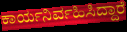
ಕಾರ್ಯನಿರ್ವಹಿಸಿದ್ದಾರೆ